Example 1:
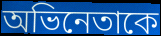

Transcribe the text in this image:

অভিনেতাকে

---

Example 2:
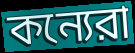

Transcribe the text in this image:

কন্যেরা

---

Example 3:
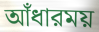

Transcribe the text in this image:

আঁধারময়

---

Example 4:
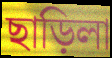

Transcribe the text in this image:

ছাড়িলা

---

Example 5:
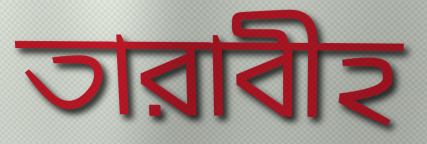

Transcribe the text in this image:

তারাবীহ